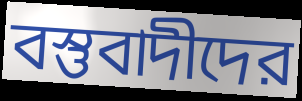
বস্তুবাদীদের